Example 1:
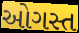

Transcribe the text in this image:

ઓગસ્ત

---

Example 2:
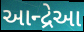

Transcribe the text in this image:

આન્દ્રેઆ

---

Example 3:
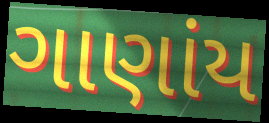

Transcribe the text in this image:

ગાણાંય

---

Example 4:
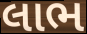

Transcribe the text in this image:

લાભ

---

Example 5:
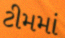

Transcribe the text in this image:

ટીમમાં